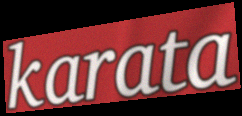
karata